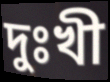
দুঃখী